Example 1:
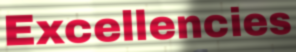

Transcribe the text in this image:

Excellencies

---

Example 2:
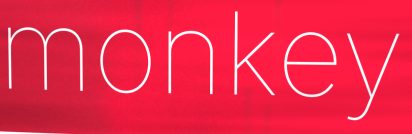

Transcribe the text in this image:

monkey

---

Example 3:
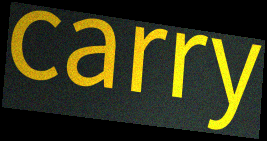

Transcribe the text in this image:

carry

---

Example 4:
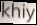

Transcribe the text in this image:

khiy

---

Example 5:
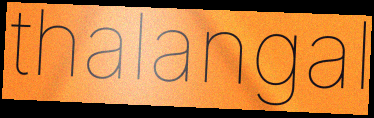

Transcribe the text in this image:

thalangal